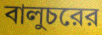
বালুচরের